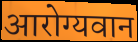
आरोग्यवान